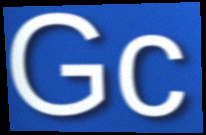
Gc